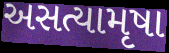
અસત્યામૃષા